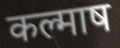
कल्माष